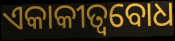
ଏକାକୀତ୍ୱବୋଧ